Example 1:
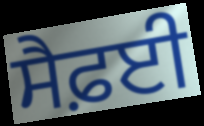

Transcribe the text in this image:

ਸੈਫ਼ਈ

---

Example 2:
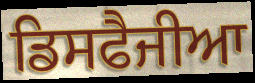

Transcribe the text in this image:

ਡਿਸਫੈਜੀਆ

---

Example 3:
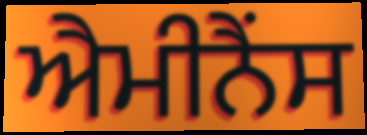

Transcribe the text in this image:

ਐਮੀਨੈਂਸ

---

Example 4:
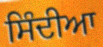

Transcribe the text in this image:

ਸਿੰਦੀਆ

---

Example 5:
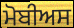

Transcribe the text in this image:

ਮੋਬੀਅਸ